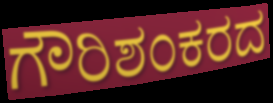
ಗೌರಿಶಂಕರದ